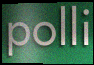
polli